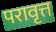
परावृत्त